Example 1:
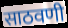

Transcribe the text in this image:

साठवणी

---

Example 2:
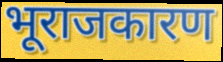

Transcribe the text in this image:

भूराजकारण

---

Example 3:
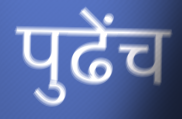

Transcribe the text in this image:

पुढेंच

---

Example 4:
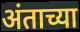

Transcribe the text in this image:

अंताच्या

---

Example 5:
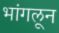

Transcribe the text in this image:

भांगलून